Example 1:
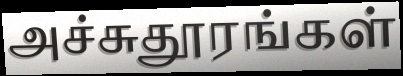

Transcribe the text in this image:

அச்சுதூரங்கள்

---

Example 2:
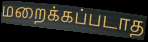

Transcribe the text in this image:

மறைக்கப்படாத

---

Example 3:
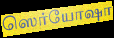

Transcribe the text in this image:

ஸெர்யோஷா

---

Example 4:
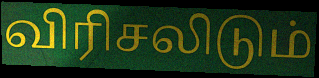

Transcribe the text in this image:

விரிசலிடும்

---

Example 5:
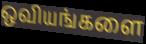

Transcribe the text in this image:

ஒவியங்களை